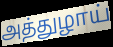
அத்துழாய்